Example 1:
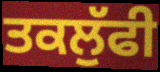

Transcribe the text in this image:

ਤਕਲੁੱਫੀ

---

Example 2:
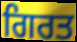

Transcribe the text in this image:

ਗਿਰਤ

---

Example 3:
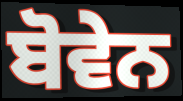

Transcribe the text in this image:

ਬੋਵੇਨ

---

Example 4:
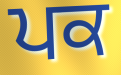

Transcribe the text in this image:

ਪਕ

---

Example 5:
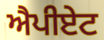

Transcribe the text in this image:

ਐਪੀਏਟ